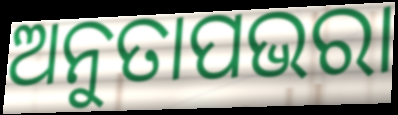
ଅନୁତାପଭରା